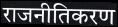
राजनीतिकरण